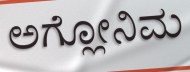
ಅಗ್ಲೋನಿಮ